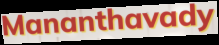
Mananthavady